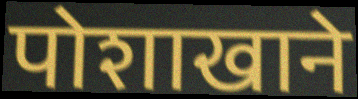
पोशाखाने